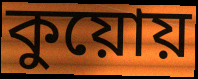
কুয়োয়